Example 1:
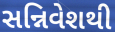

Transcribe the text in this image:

સન્નિવેશથી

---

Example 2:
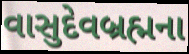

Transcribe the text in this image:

વાસુદેવબ્રહ્મના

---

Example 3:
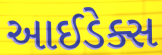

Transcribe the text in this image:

આઈડેક્સ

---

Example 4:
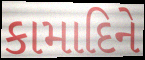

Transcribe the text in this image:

કામાદિને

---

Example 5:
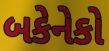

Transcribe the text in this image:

બકેનેકો